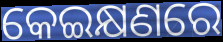
କେଇକ୍ଷଣରେ